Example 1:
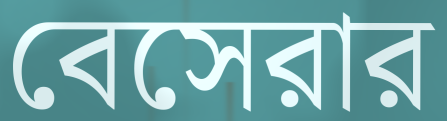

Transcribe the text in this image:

বেসেরার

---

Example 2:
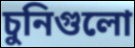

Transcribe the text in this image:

চুনিগুলো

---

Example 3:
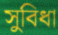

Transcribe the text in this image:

সুবিধা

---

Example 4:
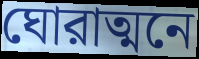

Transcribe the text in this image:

ঘোরাত্মনে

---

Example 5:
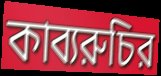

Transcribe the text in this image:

কাব্যরুচির